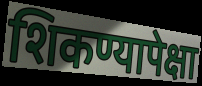
शिकण्यापेक्षा